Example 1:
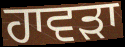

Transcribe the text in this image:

ਹਾਵਡ਼ਾ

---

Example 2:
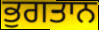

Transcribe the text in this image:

ਭੁਗਤਾਨ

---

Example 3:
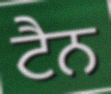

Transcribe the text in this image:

ਟੈਨ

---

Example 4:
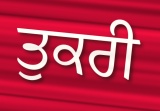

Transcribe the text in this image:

ਤੁਕਰੀ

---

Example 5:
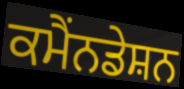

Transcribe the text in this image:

ਕਮੈਂਨਡੇਸ਼ਨ